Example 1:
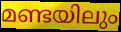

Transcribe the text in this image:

മണ്ടയിലും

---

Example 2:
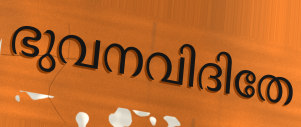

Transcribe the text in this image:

ഭുവനവിദിതേ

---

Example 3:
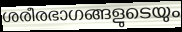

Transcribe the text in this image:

ശരീരഭാഗങ്ങളുടെയും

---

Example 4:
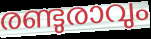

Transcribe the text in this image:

രണ്ടുരാവും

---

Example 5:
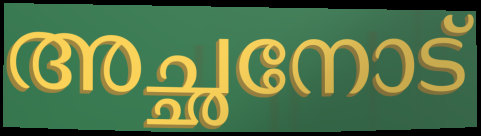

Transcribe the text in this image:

അച്ഛനോട്